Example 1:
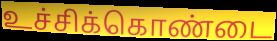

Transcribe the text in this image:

உச்சிக்கொண்டை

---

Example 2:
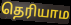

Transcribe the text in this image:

தெரியாம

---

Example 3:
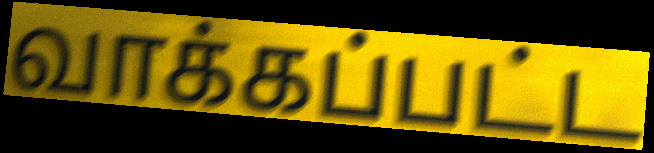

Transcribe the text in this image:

வாக்கப்பட்ட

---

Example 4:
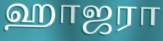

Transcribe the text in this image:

ஹாஜரா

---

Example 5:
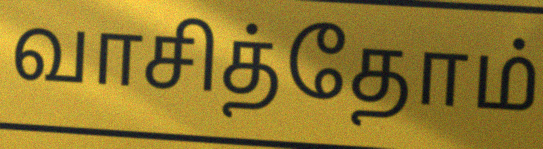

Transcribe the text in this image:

வாசித்தோம்